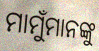
ମାମୁଁମାନଙ୍କୁ